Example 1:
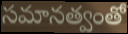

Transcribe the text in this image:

సమానత్వంతో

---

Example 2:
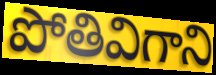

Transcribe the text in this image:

పోతివిగాని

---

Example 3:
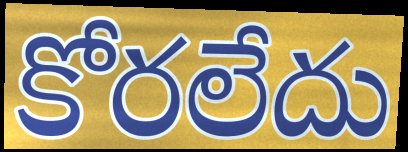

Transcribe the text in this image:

కోరలేదు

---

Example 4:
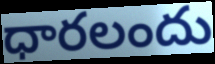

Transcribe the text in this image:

ధారలందు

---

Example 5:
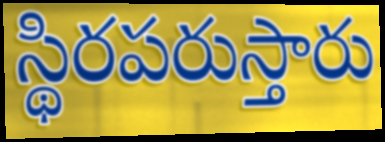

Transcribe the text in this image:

స్థిరపరుస్తారు